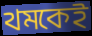
থমকেই